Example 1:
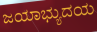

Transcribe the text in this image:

ಜಯಾಭ್ಯುದಯ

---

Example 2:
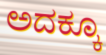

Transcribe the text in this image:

ಅದಕ್ಕೂ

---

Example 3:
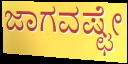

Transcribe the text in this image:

ಜಾಗವಷ್ಟೇ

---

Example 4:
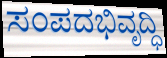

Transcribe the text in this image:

ಸಂಪದಭಿವೃದ್ಧಿ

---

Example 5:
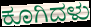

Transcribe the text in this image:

ಕೂಗಿದಳು